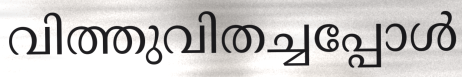
വിത്തുവിതച്ചപ്പോൾ